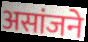
असांजने